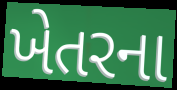
ખેતરના